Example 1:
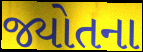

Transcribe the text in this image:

જ્યોતના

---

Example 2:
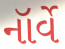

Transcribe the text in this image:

નૉર્વે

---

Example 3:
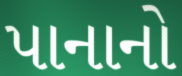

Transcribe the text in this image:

પાનાનો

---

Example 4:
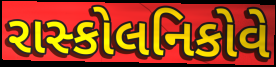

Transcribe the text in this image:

રાસ્કોલનિકોવે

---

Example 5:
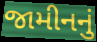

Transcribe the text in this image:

જામીનનું